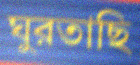
ঘুরতাছি